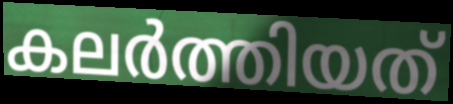
കലർത്തിയത്